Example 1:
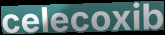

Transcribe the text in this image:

celecoxib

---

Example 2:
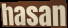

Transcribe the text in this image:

hasan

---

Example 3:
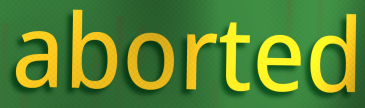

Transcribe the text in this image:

aborted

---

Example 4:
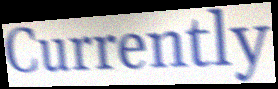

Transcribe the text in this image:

Currently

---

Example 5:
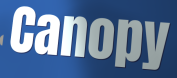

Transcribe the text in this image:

Canopy